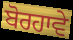
ਬੋਰਹਾਵੇ